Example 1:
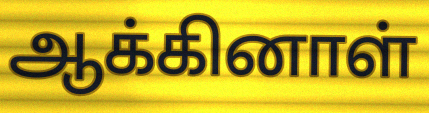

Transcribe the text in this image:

ஆக்கினாள்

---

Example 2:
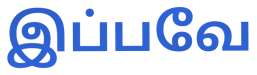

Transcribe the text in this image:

இப்பவே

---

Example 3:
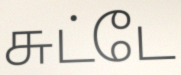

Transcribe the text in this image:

சுட்டே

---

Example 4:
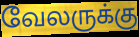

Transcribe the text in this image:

வேலருக்கு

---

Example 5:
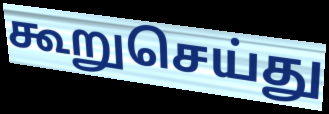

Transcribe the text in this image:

கூறுசெய்து